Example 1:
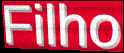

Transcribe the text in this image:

Filho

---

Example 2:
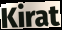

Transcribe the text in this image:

Kirat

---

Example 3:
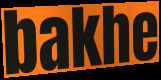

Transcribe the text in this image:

bakhe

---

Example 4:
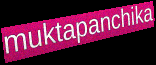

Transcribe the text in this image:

muktapanchika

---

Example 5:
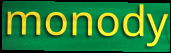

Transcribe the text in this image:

monody